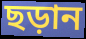
ছড়ান